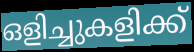
ഒളിച്ചുകളിക്ക്